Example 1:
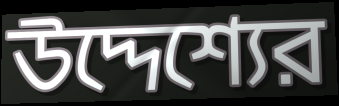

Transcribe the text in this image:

উদ্দেশ্যের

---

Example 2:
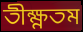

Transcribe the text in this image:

তীক্ষ্ণতম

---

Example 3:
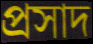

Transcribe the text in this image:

প্রসাদ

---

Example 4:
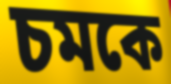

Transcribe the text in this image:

চমকে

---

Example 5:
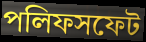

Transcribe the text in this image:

পলিফসফেট